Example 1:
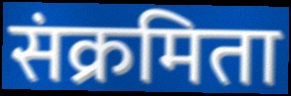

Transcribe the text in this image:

संक्रमिता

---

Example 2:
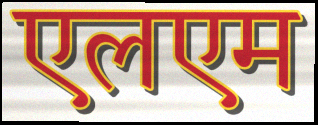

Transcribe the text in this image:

एलएम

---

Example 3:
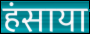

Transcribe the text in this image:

हंसाया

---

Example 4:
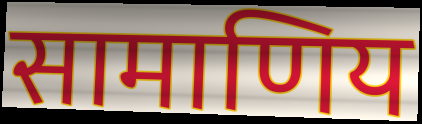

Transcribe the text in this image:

सामाणिय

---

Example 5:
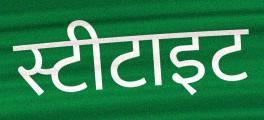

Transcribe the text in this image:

स्टीटाइट